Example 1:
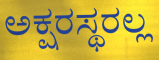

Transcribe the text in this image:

ಅಕ್ಷರಸ್ಥರಲ್ಲ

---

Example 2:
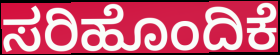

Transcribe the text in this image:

ಸರಿಹೊಂದಿಕೆ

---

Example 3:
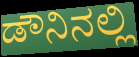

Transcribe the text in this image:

ಡೌನಿನಲ್ಲಿ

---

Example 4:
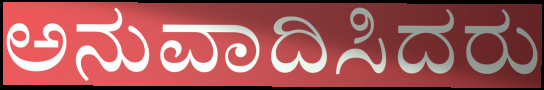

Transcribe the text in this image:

ಅನುವಾದಿಸಿದರು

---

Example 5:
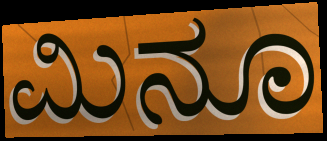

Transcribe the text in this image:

ಮಿನೂ